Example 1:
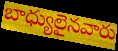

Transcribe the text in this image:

బాధ్యులైనవారు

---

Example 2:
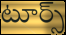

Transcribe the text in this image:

టూర్స్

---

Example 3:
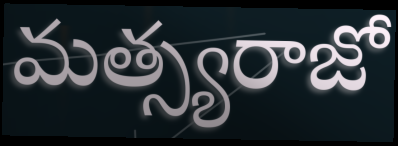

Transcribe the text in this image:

మత్స్యరాజో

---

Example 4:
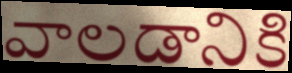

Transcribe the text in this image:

వాలడానికి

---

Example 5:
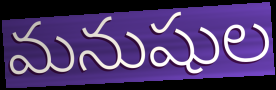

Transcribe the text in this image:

మనుషుల